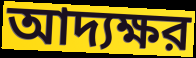
আদ্যক্ষর